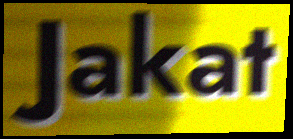
Jakat